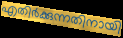
എതിർക്കുന്നതിനായി